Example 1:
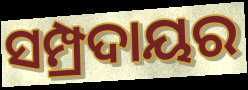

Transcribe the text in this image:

ସମ୍ପ୍ରଦାୟର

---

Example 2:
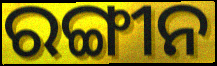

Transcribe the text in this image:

ରଙ୍ଗୀନ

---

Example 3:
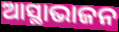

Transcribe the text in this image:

ଆସ୍ଥାଭାଜନ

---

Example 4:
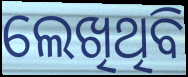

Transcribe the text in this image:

ଲେଖିଥିବି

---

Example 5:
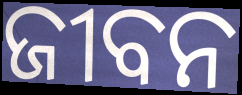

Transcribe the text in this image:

ଜୀବନ